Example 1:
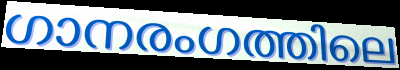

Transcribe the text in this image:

ഗാനരംഗത്തിലെ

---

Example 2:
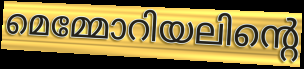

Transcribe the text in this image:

മെമ്മോറിയലിന്റെ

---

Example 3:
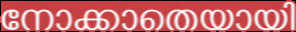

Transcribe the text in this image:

നോക്കാതെയായി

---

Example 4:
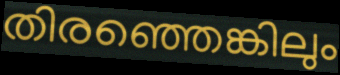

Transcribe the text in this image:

തിരഞ്ഞെങ്കിലും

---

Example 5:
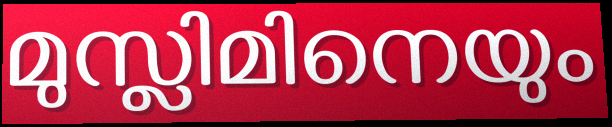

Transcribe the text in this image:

മുസ്ലിമിനെയും